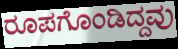
ರೂಪಗೊಂಡಿದ್ದವು